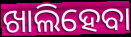
ଖାଲିହେବା